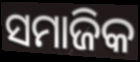
ସମାଜିକ